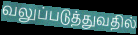
வலுப்படுத்துவதில்